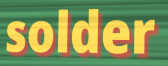
solder